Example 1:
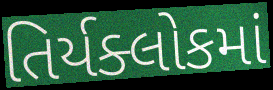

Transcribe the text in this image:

તિર્યક્લોકમાં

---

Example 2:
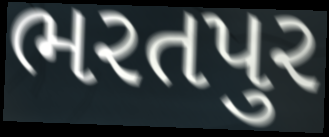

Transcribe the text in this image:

ભરતપુર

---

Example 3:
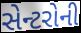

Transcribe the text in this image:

સેન્ટરોની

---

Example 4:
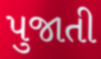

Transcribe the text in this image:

પુજાતી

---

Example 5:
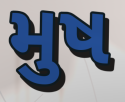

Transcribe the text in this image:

મુષ